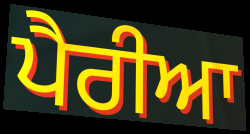
ਪੈਰੀਆ